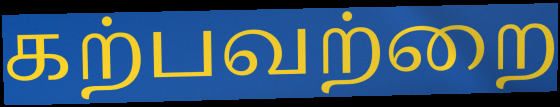
கற்பவற்றை